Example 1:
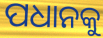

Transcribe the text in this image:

ପଧାନକୁ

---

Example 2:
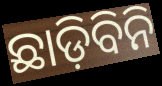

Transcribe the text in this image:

ଛାଡ଼ିବିନି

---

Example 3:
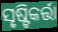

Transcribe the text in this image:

ସୃଷ୍ଟିକର୍ତ୍ତା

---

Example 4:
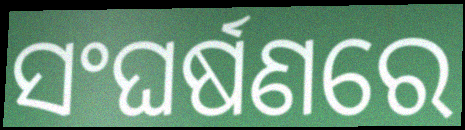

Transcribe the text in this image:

ସଂଘର୍ଷଣରେ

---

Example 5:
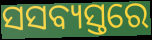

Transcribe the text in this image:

ସସବ୍ୟସ୍ତରେ